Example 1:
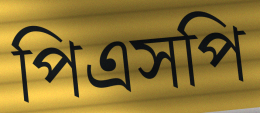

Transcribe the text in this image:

পিএসপি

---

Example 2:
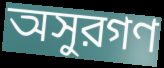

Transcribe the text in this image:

অসুরগণ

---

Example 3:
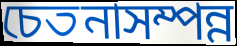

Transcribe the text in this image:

চেতনাসম্পন্ন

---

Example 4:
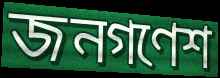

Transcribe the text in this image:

জনগণেশ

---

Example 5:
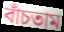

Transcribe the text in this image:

বাঁচতাম